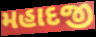
મહાદજી